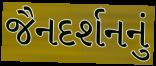
જૈનદર્શનનું